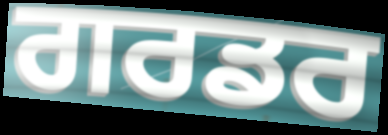
ਗਰਡਰ